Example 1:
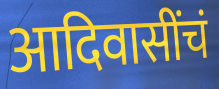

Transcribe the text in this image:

आदिवासींचं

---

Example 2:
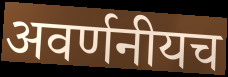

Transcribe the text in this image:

अवर्णनीयच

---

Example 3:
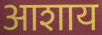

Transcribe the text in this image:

आशाय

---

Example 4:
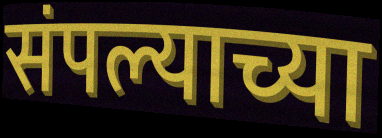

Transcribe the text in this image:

संपल्याच्या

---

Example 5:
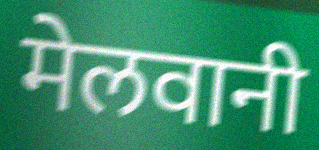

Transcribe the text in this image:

मेलवानी